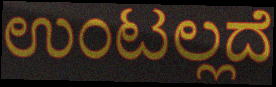
ಉಂಟಲ್ಲದೆ